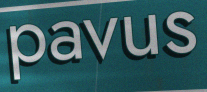
pavus